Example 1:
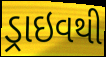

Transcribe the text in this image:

ડ્રાઇવથી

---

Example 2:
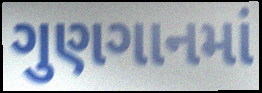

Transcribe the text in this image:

ગુણગાનમાં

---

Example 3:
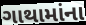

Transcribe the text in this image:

ગાથામાંના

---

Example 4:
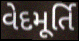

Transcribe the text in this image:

વેદમૂર્તિ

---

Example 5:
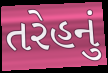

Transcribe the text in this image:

તરેહનું